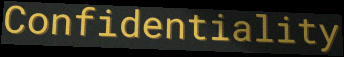
Confidentiality